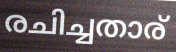
രചിച്ചതാര്